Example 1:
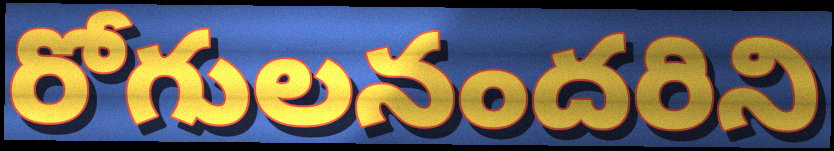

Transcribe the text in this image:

రోగులనందరిని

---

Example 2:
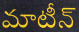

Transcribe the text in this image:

మాటీన్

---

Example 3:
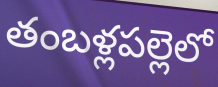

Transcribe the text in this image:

తంబళ్లపల్లెలో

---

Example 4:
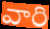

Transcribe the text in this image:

వారి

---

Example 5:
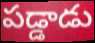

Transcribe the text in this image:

పడ్డాడు